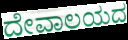
ದೇವಾಲಯದ